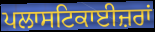
ਪਲਾਸਟਿਕਾਈਜ਼ਰਾਂ